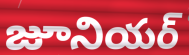
జూనియర్